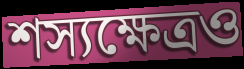
শস্যক্ষেত্রও